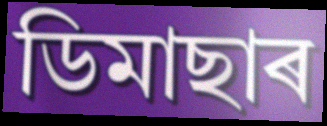
ডিমাছাৰ